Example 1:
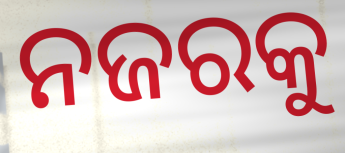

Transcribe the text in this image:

ନଜରକୁ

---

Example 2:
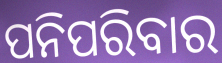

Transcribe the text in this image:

ପନିପରିବାର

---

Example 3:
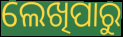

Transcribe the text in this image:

ଲେଖିପାରୁ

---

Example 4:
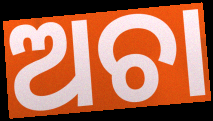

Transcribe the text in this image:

ଅଚା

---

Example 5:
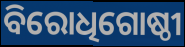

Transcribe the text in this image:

ବିରୋଧିଗୋଷ୍ଠୀ